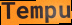
Tempu